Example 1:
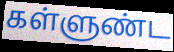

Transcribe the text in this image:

கள்ளுண்ட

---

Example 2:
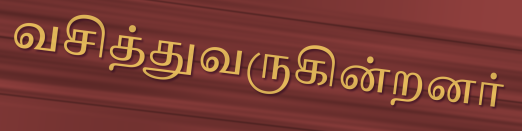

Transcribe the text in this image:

வசித்துவருகின்றனர்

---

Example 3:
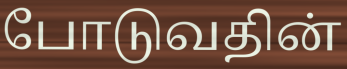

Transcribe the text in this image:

போடுவதின்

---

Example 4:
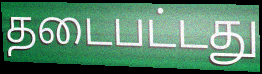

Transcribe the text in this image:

தடைபட்டது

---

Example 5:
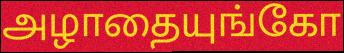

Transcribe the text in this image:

அழாதையுங்கோ